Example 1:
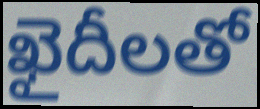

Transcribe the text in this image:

ఖైదీలతో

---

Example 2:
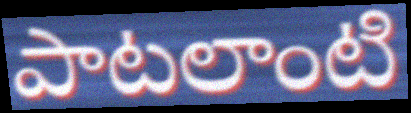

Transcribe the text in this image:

పాటలాంటి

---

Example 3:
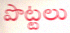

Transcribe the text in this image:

పొట్టలు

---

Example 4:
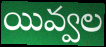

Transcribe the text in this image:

యివ్వల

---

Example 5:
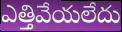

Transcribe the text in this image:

ఎత్తివేయలేదు